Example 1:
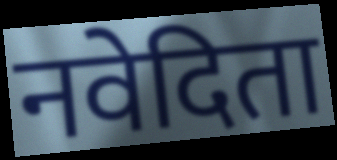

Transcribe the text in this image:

नवेदिता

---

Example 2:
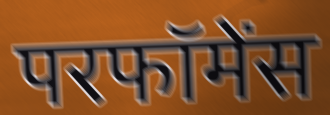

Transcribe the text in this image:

परफॉमेंस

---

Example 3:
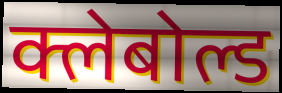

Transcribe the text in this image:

क्लेबोल्ड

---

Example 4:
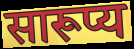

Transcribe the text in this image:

सारूप्य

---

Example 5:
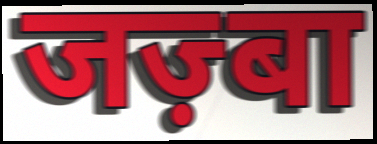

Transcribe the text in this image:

जज़्बा